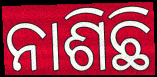
ନାଶିଛି